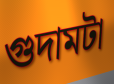
গুদামটা